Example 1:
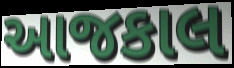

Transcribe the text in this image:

આજકાલ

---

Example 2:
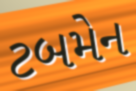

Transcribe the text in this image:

ટબમેન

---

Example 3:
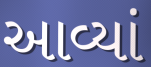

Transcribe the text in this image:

આવ્યાં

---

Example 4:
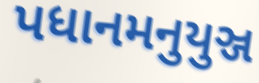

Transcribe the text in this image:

પધાનમનુયુઞ્જ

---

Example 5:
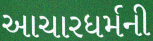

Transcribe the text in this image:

આચારધર્મની